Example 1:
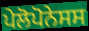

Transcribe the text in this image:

ਪੇਲੋਪੋਨੇਸਸ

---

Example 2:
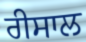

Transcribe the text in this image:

ਰੀਸਾਲ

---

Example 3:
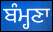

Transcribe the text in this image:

ਬੰਮ੍ਹਣਾ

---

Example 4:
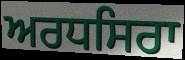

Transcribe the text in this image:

ਅਰਧਸਿਰਾ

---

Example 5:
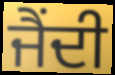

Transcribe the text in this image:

ਜੈਂਦੀ